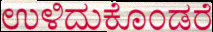
ಉಳಿದುಕೊಂಡರೆ